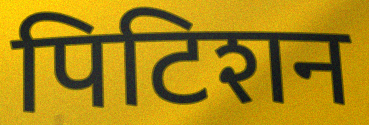
पिटिशन